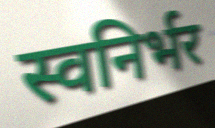
स्वनिर्भर